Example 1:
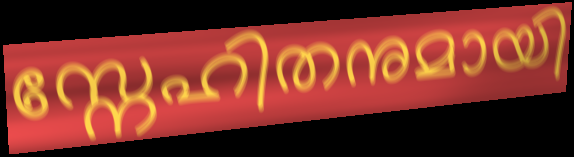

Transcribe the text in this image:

സ്നേഹിതനുമായി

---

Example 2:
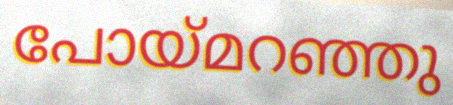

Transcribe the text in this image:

പോയ്മറഞ്ഞു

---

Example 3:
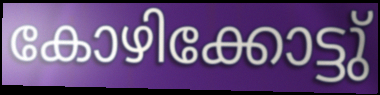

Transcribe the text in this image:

കോഴിക്കോട്ടു്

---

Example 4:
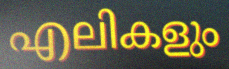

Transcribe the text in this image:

എലികളും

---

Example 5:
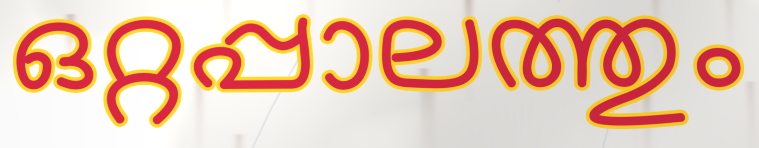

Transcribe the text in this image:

ഒറ്റപ്പാലത്തും